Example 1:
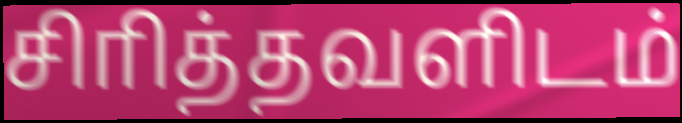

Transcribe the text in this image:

சிரித்தவளிடம்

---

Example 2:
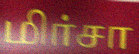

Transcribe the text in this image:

மிர்சா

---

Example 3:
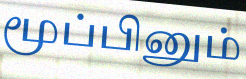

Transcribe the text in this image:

மூப்பினும்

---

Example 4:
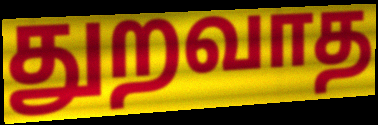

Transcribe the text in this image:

துறவாத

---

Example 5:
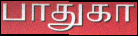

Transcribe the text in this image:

பாதுகா